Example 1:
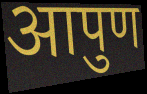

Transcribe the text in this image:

आपुण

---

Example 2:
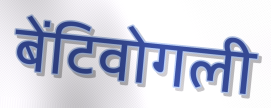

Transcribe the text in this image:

बेंटिवोगली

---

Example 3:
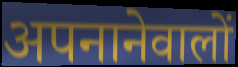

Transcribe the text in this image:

अपनानेवालों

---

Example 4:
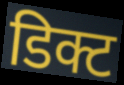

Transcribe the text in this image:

डिक्ट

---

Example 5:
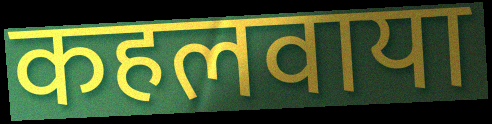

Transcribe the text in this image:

कहलवाया